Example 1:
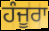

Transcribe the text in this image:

ਹੰਜੂਰਾ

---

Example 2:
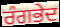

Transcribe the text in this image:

ਰੰਗਭੇਦ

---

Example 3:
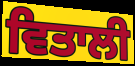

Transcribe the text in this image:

ਵਿਤਾਲੀ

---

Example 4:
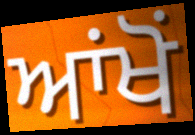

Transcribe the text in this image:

ਆਂਖੋਂ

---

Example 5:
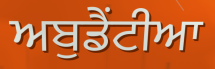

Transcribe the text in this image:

ਅਬੁਡੈਂਟੀਆ